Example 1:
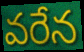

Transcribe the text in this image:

వరేన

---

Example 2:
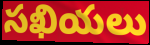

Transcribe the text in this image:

సఖియలు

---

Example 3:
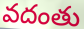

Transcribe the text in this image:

వదంతు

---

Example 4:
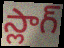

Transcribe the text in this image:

స్లాగ్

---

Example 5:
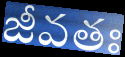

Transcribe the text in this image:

జీవతః